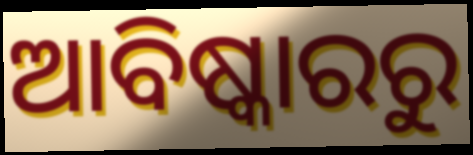
ଆବିଷ୍କାରରୁ